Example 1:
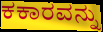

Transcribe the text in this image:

ಕಕಾರವನ್ನು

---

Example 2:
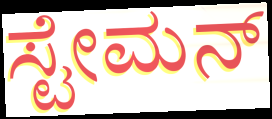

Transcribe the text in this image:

ಸ್ಟೇಮನ್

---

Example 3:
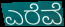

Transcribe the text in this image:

ಎರೆವೆ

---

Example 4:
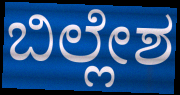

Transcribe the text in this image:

ಬಿಲ್ಲೇಶ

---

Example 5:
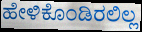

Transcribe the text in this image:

ಹೇಳಿಕೊಂಡಿರಲಿಲ್ಲ